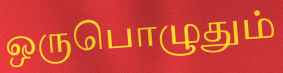
ஒருபொழுதும்